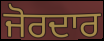
ਜੋਰਦਾਰ